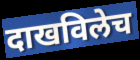
दाखविलेच